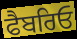
ਫੈਬਰਿਓ